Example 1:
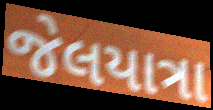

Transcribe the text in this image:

જેલયાત્રા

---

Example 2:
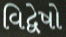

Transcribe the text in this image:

વિદ્વેષો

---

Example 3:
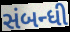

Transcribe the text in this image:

સંબન્ધી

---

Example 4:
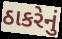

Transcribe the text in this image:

ઠાકરેનું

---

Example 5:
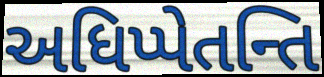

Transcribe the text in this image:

અધિપ્પેતન્તિ